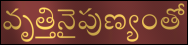
వృత్తినైపుణ్యంతో